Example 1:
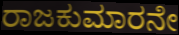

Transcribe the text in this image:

ರಾಜಕುಮಾರನೇ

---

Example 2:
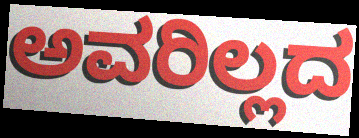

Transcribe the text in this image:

ಅವರಿಲ್ಲದ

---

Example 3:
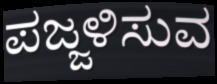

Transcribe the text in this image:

ಪಜ್ಜಳಿಸುವ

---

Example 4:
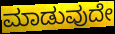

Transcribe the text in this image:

ಮಾಡುವುದೇ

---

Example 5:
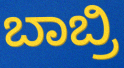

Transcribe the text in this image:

ಬಾಬ್ರಿ